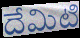
దేమిటి